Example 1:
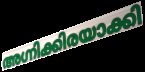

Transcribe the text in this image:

അഗ്നിക്കിരയാക്കി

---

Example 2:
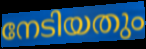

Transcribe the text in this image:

നേടിയതും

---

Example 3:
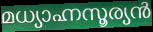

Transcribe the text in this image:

മധ്യാഹ്നസൂര്യൻ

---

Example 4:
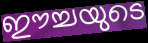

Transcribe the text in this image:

ഈച്ചയുടെ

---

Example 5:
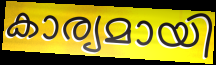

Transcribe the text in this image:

കാര്യമായി